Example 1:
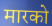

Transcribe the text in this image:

मारको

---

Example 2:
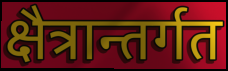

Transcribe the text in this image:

क्षैत्रान्तर्गत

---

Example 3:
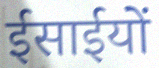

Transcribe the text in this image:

ईसाईयों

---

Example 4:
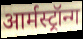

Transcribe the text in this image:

आर्मस्ट्रॉन्ग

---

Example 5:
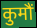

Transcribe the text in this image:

कुमौं